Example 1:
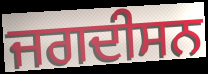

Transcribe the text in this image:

ਜਗਦੀਸਨ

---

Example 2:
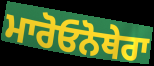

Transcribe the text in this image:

ਮਾਰੋਓਨੋਥੇਰਾ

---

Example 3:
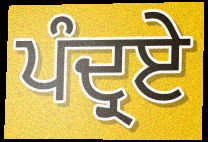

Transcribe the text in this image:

ਪੰਦ੍ਰਏ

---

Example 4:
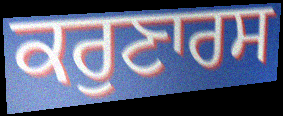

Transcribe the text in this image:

ਕਰੁਣਾਰਸ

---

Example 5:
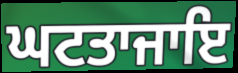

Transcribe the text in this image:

ਘਟਤਾਜਾਇ